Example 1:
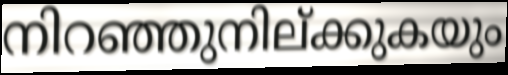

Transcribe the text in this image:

നിറഞ്ഞുനില്ക്കുകയും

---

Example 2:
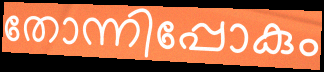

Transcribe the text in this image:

തോന്നിപ്പോകും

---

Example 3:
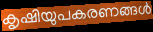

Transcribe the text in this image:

കൃഷിയുപകരണങ്ങൾ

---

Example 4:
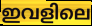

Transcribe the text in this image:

ഇവളിലെ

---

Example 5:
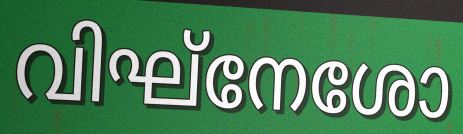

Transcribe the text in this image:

വിഘ്നേശോ